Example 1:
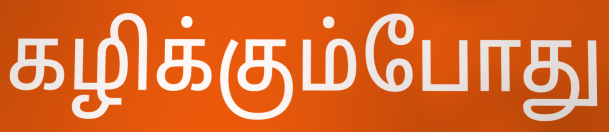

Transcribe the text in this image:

கழிக்கும்போது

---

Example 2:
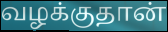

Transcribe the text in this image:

வழக்குதான்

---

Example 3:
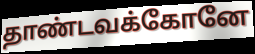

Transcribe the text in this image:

தாண்டவக்கோனே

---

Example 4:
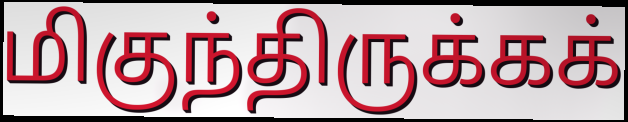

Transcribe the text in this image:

மிகுந்திருக்கக்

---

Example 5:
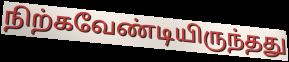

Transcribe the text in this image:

நிற்கவேண்டியிருந்தது